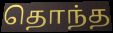
தொந்த